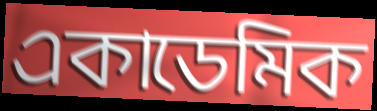
একাডেমিক